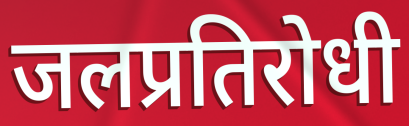
जलप्रतिरोधी